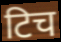
टिच